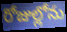
రోజుల్లోను